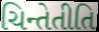
ચિન્તેતીતિ